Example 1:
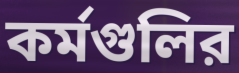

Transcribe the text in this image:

কর্মগুলির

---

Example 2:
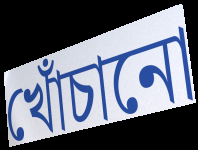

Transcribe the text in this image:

খোঁচানো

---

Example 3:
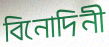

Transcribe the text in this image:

বিনোদিনী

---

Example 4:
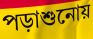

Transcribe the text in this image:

পড়াশুনোয়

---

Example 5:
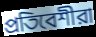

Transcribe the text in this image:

প্রতিবেশীরা